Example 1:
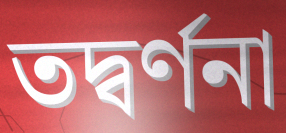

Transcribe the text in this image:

তদ্বর্ণনা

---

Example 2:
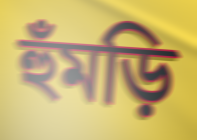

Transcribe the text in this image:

হুঁমড়ি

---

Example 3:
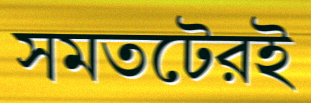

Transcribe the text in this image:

সমতটেরই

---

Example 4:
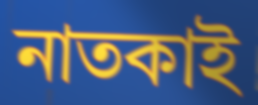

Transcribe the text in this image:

নাতকাই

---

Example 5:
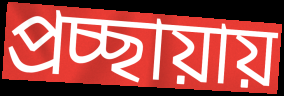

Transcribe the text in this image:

প্রচ্ছায়ায়